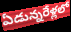
ఏడున్నరేళ్లలో